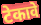
टेकावे